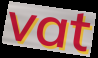
vat